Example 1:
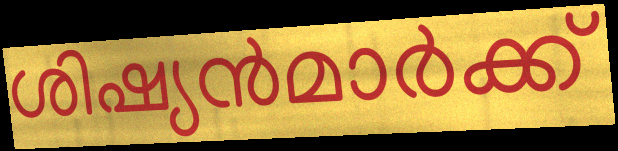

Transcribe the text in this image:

ശിഷ്യൻമാർക്ക്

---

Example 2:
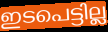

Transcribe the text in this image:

ഇടപെട്ടില്ല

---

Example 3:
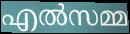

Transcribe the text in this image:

എൽസമ്മ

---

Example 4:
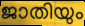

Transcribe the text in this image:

ജാതിയും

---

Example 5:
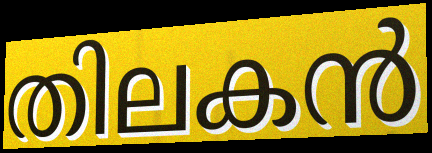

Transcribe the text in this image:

തിലകൻ